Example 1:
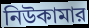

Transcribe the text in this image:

নিউকামার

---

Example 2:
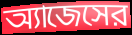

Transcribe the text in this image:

অ্যাজেসের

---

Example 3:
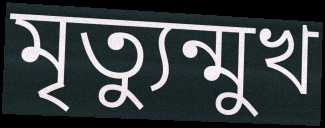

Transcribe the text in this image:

মৃত্যুন্মুখ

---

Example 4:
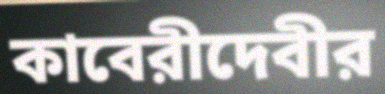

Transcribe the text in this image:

কাবেরীদেবীর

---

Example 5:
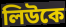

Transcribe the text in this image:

লিউকে